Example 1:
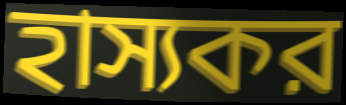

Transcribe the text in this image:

হাস্যকর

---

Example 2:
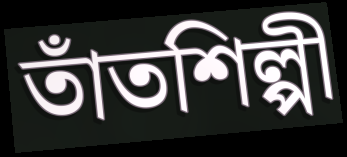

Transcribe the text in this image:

তাঁতশিল্পী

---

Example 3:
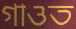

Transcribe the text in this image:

গাওত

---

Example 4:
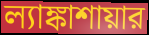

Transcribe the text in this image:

ল্যাঙ্কাশায়ার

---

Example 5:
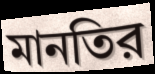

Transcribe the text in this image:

মানতির